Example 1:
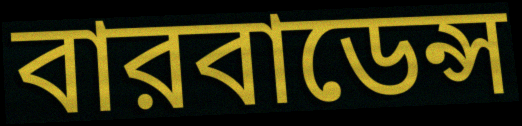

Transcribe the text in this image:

বারবাডেন্স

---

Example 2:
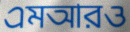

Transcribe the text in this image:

এমআরও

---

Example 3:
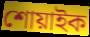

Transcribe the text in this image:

শোয়াইক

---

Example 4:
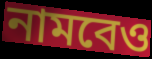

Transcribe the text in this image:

নামবেও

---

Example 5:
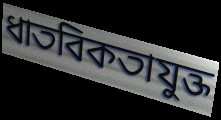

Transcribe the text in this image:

ধাতবিকতাযুক্ত